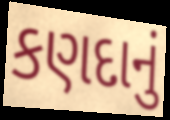
કણદાનું